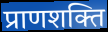
प्राणशक्ति